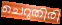
ചെറുതിരി